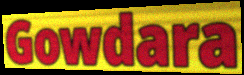
Gowdara